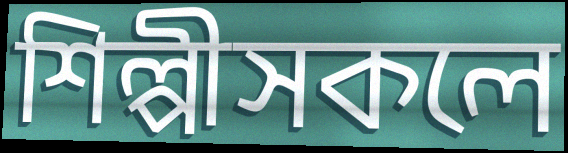
শিল্পীসকলে